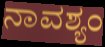
ನಾವಶ್ಯಂ